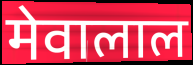
मेवालाल